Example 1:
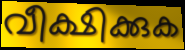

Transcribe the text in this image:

വീക്ഷിക്കുക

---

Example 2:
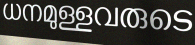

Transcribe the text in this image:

ധനമുള്ളവരുടെ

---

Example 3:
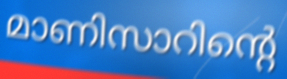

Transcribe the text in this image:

മാണിസാറിന്റെ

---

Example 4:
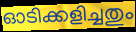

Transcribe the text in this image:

ഓടിക്കളിച്ചതും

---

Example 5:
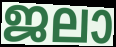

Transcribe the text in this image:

ജലാ